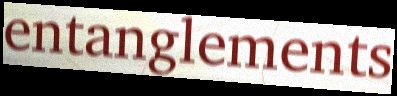
entanglements